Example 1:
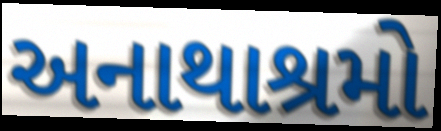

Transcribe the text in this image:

અનાથાશ્રમો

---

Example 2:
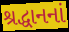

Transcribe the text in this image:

શ્રદ્ધાનનાં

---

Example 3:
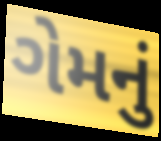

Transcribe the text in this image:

ગેમનું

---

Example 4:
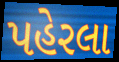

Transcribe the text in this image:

પહેરલા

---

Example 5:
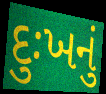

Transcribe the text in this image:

દુઃખનું